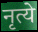
नृत्ये